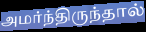
அமர்ந்திருந்தால்